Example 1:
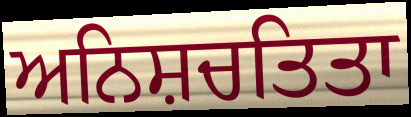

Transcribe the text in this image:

ਅਨਿਸ਼ਚਤਿਤਾ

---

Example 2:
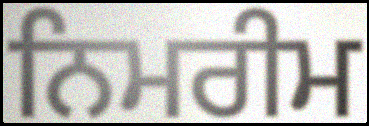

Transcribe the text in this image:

ਨਿਮਰੀਮ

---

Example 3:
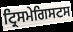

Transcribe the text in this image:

ਟ੍ਰਿਸਮੇਗਿਸਟਸ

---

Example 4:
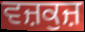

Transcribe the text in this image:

ਵਜ਼ਕੁਜ਼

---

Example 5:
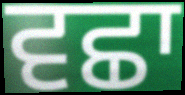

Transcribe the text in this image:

ਵਛਾ